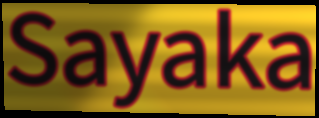
Sayaka